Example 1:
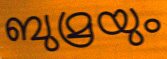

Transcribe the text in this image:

ബുമ്രയും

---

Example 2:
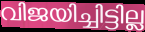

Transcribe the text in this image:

വിജയിച്ചിട്ടില്ല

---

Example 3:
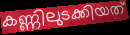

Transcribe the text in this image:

കണ്ണിലുടക്കിയത്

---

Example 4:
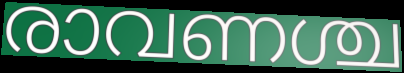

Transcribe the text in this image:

രാവണശ്ച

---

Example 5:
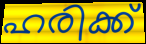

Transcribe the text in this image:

ഹരിക്ക്